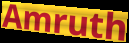
Amruth